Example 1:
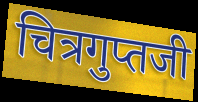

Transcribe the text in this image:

चित्रगुप्तजी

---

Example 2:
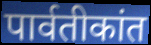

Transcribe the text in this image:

पार्वतीकांत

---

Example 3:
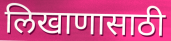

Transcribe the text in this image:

लिखाणासाठी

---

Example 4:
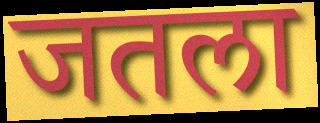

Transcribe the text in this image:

जतला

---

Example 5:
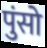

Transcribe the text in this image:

पुंसो